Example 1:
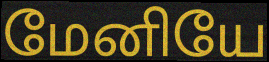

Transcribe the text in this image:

மேனியே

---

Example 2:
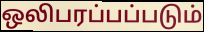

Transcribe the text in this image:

ஒலிபரப்பப்படும்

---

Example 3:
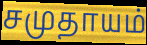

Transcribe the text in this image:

சமுதாயம்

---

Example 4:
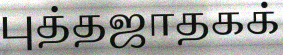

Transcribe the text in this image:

புத்தஜாதகக்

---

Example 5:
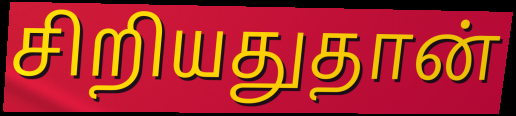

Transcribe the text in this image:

சிறியதுதான்